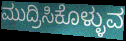
ಮುದ್ರಿಸಿಕೊಳ್ಳುವ